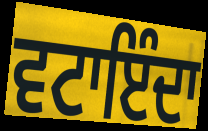
ਵਟਾਇੰਦਾ